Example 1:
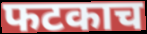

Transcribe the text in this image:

फटकाच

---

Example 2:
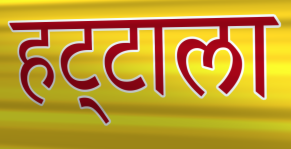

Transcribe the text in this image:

हट्‌टाला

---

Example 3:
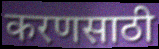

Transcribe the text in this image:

करणसाठी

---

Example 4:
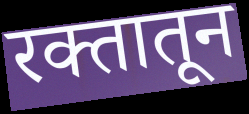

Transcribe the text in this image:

रक्तातून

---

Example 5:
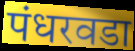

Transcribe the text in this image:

पंधरवडा